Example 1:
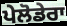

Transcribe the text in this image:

ਪੇਲੋਡੇਰਾ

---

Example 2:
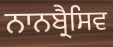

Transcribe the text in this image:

ਨਾਨਬ੍ਰੈਸਿਵ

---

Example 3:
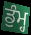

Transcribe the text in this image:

ਡੁੰਮ੍ਹ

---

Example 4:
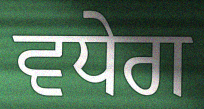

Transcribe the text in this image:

ਵਧੇਗ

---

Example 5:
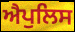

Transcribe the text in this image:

ਐਪੁਲਿਸ